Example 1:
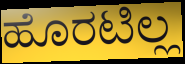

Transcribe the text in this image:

ಹೊರಟಿಲ್ಲ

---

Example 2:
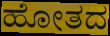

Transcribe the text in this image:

ಹೋತದ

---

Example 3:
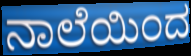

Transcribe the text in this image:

ನಾಲೆಯಿಂದ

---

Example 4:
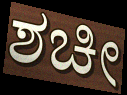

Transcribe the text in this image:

ಶಚೀ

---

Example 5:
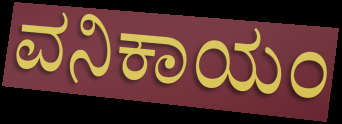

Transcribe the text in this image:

ವನಿಕಾಯಂ